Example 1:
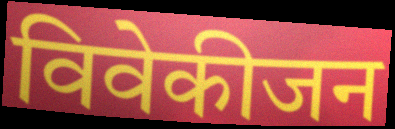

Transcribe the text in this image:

विवेकीजन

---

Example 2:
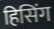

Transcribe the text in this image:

हिसिंग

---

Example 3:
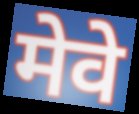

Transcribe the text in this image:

मेवे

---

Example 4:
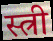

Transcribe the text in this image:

स्‍त्री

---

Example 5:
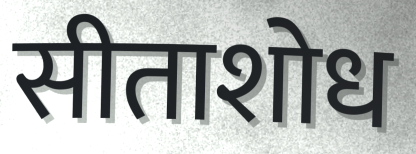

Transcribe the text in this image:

सीताशोध